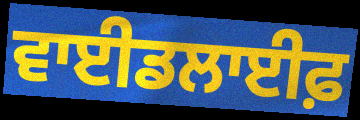
ਵਾਈਡਲਾਈਫ਼